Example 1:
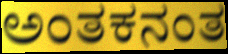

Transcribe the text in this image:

ಅಂತಕನಂತ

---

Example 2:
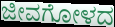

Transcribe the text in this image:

ಜೀವಗೋಳದ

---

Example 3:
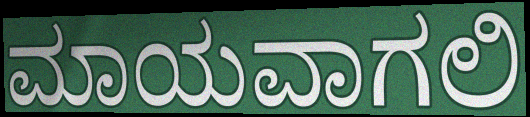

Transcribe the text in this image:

ಮಾಯವಾಗಲಿ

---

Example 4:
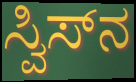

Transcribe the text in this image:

ಸ್ವಿಸ್‌ನ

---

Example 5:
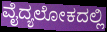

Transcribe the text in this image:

ವೈದ್ಯಲೋಕದಲ್ಲಿ